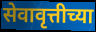
सेवावृत्तीच्या